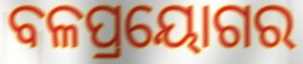
ବଳପ୍ରୟୋଗର